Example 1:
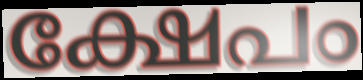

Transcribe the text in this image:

ക്ഷേപം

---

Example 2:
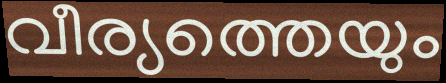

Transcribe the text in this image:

വീര്യത്തെയും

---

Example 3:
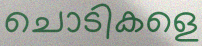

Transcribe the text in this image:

ചൊടികളെ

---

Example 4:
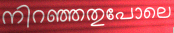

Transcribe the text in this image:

നിറഞ്ഞതുപോലെ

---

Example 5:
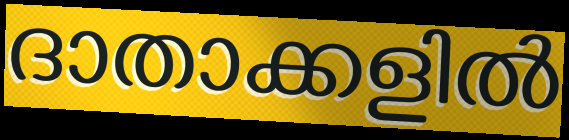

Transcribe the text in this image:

ദാതാക്കളിൽ